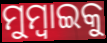
ମୁମ୍ୱାଇକୁ